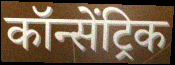
कॉन्सेंट्रिक